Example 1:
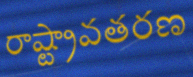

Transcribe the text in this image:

రాష్ట్రావతరణ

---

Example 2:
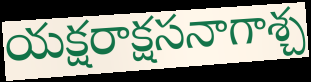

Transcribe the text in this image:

యక్షరాక్షసనాగాశ్చ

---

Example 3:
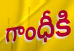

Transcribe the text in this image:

గాంధీకి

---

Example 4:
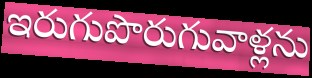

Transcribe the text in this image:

ఇరుగుపొరుగువాళ్లను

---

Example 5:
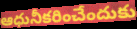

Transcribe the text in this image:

ఆధునీకరించేందుకు